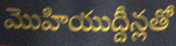
మొహియుద్దీన్లతో